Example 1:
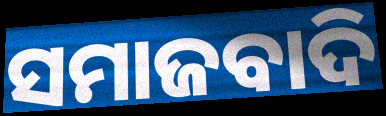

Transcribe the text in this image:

ସମାଜବାଦି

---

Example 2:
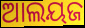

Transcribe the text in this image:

ଆଲୟଜ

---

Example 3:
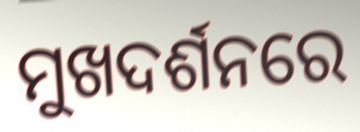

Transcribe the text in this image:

ମୁଖଦର୍ଶନରେ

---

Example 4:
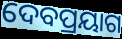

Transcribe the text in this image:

ଦେବପ୍ରୟାଗ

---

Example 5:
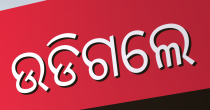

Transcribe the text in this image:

ଉଡିଗଲେ